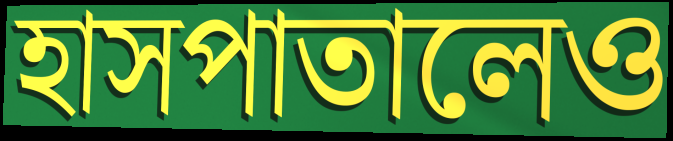
হাসপাতালেও